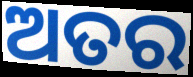
ଅତର